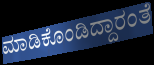
ಮಾಡಿಕೊಂಡಿದ್ದಾರಂತೆ